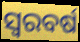
ସ୍ଵରବର୍ଷ